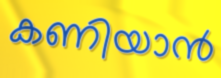
കണിയാൻ